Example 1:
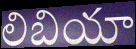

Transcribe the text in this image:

లిబియా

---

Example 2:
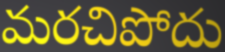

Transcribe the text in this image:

మరచిపోదు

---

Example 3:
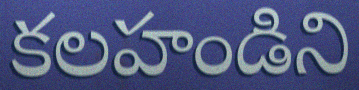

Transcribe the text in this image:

కలహండిని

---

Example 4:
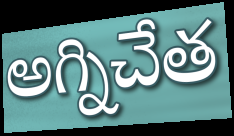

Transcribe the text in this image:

అగ్నిచేత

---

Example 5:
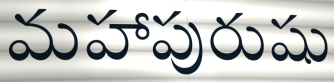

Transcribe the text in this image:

మహాపురుషు